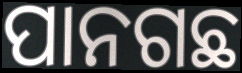
ପାନଗଛ